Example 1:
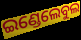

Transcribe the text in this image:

ଇଣ୍ଡେଲେବୁଲ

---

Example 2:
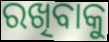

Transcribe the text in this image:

ରଖିବାକୁ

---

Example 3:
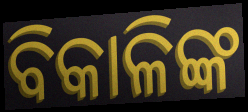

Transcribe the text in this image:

ବିକାଳିଙ୍କ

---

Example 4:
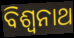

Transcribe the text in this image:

ବିଶ୍ୱନାଥ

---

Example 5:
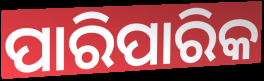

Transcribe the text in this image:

ପାରିପାରିକ